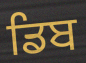
ਡਿਬ